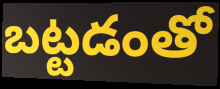
బట్టడంతో